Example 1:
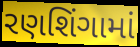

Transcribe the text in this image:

રણશિંગામાં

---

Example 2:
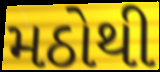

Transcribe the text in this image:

મઠોથી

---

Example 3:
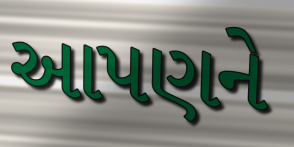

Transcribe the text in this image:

આપણને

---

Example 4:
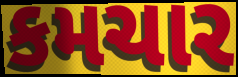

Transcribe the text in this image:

કમચાર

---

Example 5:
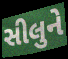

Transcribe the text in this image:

સીલુને